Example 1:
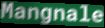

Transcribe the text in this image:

Mangnale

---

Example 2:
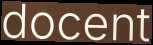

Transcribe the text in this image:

docent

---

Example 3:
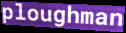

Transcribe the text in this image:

ploughman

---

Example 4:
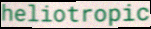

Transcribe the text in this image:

heliotropic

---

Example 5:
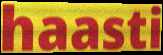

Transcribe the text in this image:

haasti